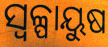
ସ୍ୱଳ୍ପାୟୁଷ